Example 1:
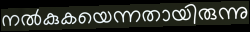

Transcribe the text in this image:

നൽകുകയെന്നതായിരുന്നു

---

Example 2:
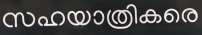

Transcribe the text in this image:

സഹയാത്രികരെ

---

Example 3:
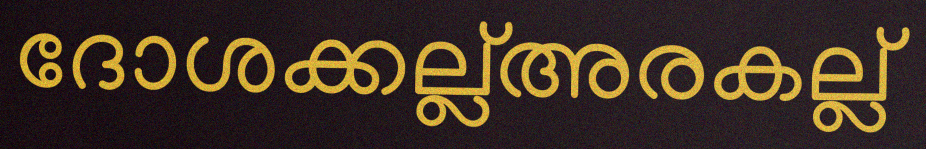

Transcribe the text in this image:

ദോശക്കല്ല്അരകല്ല്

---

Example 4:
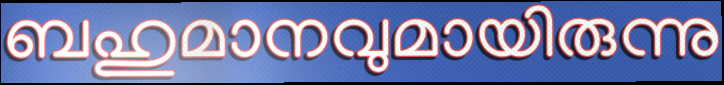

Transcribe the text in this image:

ബഹുമാനവുമായിരുന്നു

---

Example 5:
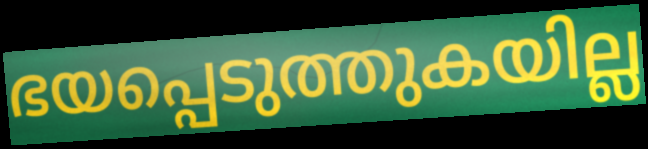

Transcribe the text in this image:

ഭയപ്പെടുത്തുകയില്ല